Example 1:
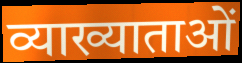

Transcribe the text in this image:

व्याख्याताओं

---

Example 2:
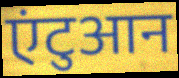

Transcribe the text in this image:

एंटुआन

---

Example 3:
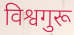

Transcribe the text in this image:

विश्वगुरू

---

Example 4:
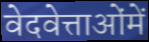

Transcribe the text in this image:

वेदवेत्ताओंमें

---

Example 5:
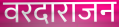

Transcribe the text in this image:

वरदाराजन